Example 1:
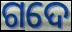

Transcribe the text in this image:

ଗଦେ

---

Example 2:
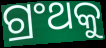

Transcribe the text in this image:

ଗ୍ରଂଥକୁ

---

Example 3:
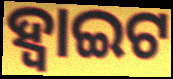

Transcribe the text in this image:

ହ୍ୱାଇଟ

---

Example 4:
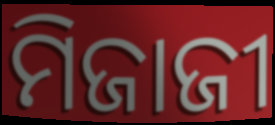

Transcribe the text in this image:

ମିଜାଜୀ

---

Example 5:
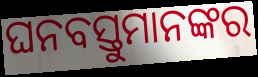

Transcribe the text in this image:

ଘନବସ୍ତୁମାନଙ୍କର